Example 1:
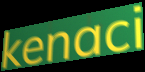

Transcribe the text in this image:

kenaci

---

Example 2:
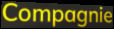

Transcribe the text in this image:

Compagnie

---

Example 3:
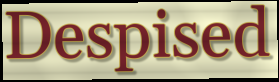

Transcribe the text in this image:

Despised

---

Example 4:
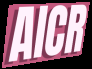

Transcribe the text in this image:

AICR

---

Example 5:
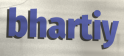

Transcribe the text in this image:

bhartiy